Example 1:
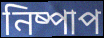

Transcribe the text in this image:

নিষ্পাপ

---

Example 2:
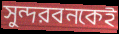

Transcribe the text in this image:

সুন্দরবনকেই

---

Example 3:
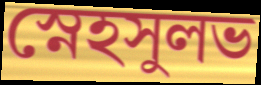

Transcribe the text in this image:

স্নেহসুলভ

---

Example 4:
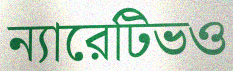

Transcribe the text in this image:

ন্যারেটিভও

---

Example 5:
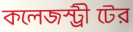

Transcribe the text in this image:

কলেজস্ট্রীটের